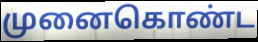
முனைகொண்ட